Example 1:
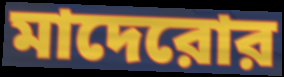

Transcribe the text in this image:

মাদেরোর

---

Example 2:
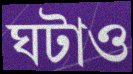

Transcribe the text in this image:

ঘটাও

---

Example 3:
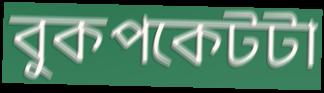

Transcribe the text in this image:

বুকপকেটটা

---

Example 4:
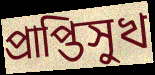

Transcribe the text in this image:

প্রাপ্তিসুখ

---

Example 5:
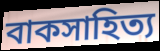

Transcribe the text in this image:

বাকসাহিত্য